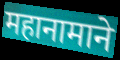
महानामाने